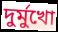
দুর্মুখো